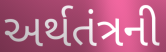
અર્થતંત્રની